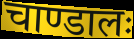
चाण्डालः